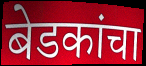
बेडकांचा